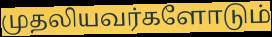
முதலியவர்களோடும்